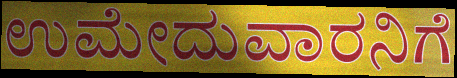
ಉಮೇದುವಾರನಿಗೆ